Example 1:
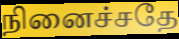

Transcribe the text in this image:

நினைச்சதே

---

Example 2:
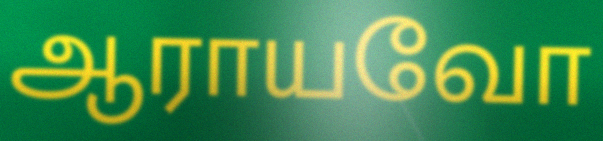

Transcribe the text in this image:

ஆராயவோ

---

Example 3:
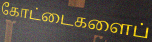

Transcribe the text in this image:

கோட்டைகளைப்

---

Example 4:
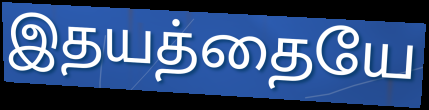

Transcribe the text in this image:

இதயத்தையே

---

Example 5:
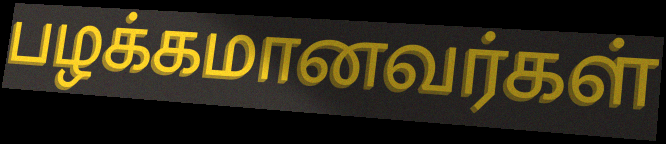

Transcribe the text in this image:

பழக்கமானவர்கள்